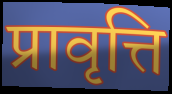
प्रावृत्ति